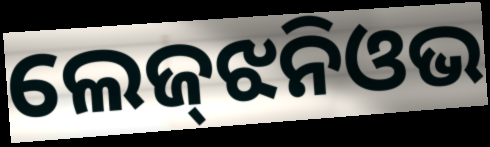
ଲେଜ୍‌ଝନିଓଭ